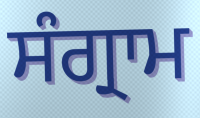
ਸੰਗ੍ਰਾਮ